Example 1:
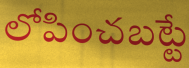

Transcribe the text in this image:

లోపించబట్టే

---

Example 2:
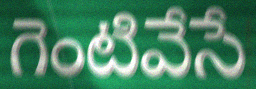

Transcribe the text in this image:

గెంటివేసే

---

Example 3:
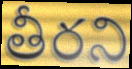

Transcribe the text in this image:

తీరని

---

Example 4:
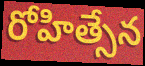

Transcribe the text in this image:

రోహిత్సేన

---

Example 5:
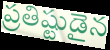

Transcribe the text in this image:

ప్రతిష్టుడైన